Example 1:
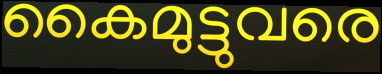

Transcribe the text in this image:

കൈമുട്ടുവരെ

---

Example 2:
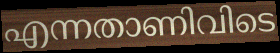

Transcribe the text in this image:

എന്നതാണിവിടെ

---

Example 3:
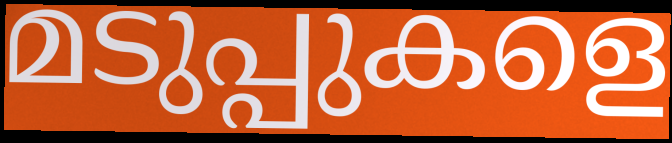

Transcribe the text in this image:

മടുപ്പുകളെ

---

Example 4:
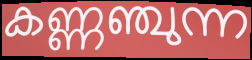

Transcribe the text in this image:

കണ്ണഞ്ചുന്ന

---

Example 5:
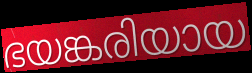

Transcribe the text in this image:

ഭയങ്കരിയായ